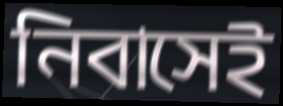
নিবাসেই